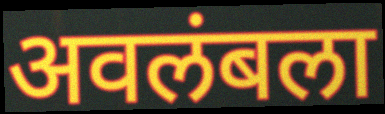
अवलंबला